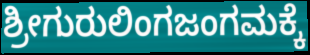
ಶ್ರೀಗುರುಲಿಂಗಜಂಗಮಕ್ಕೆ